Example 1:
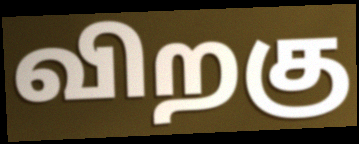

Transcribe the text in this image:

விறகு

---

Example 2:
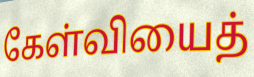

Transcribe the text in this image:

கேள்வியைத்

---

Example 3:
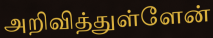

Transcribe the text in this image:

அறிவித்துள்ளேன்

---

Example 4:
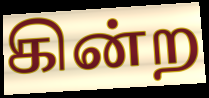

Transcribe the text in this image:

கின்ற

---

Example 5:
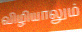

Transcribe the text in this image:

விழியாலும்